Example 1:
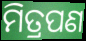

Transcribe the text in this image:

ମିତ୍ରପଣ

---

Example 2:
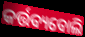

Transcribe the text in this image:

କର୍ତ୍ତବ୍ୟବୋଲି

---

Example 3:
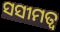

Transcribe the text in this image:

ସସୀମତ୍ୱ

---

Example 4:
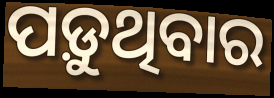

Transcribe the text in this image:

ପଡ଼ୁଥିବାର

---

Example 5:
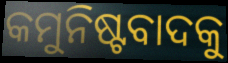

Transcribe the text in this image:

କମୁନିଷ୍ଟବାଦକୁ